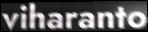
viharanto